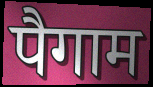
पैगाम